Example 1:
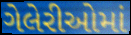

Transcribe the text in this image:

ગેલેરીઓમાં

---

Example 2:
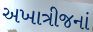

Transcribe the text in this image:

અખાત્રીજનાં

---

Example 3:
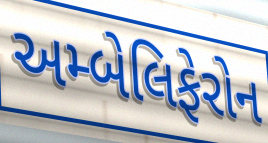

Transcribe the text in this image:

અમ્બેલિફેરોન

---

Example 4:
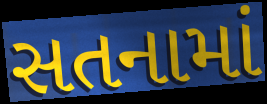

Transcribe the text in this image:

સતનામાં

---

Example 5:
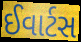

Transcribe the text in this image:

ઈવાર્ટસ